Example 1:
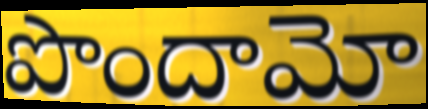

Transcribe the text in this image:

పొందామో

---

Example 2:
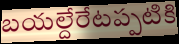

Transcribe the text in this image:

బయల్దేరేటప్పటికి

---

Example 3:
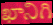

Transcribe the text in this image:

ఖానిగి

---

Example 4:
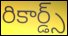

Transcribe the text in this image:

రికార్డ్స్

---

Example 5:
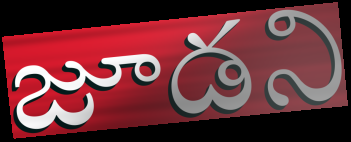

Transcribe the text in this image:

జూడని